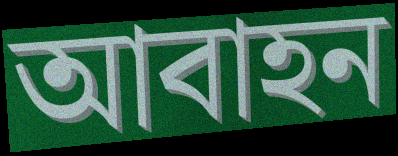
আবাহন